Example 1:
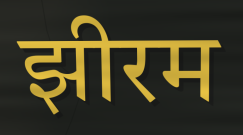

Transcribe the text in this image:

झीरम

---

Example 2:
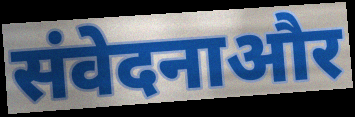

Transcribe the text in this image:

संवेदनाऔर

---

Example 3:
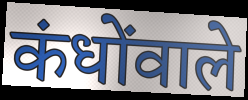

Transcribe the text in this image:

कंधोंवाले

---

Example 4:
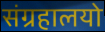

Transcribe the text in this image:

संग्रहालयो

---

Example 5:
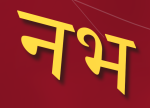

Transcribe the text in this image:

नभ